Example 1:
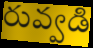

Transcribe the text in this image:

రువ్వడి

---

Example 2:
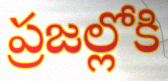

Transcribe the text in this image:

ప్రజల్లోకి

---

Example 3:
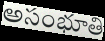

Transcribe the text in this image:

అసంభూతి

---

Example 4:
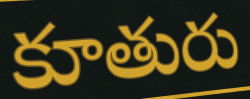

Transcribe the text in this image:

కూతురు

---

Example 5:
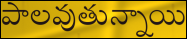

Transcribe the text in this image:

పాలవుతున్నాయి